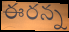
ఈరన్న